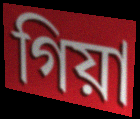
গিয়া